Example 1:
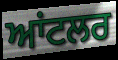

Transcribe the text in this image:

ਆਂਟਲਰ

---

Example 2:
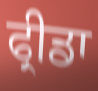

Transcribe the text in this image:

ਫ੍ਰੀਡਾ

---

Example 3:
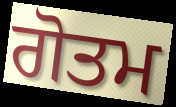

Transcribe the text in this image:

ਗੋਤਮ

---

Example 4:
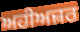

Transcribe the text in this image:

ਅਹੀਅਜ਼ਰ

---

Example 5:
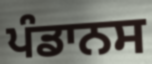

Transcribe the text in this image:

ਪੰਡਾਨਸ